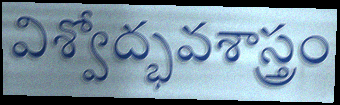
విశ్వోద్భవశాస్త్రం